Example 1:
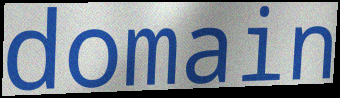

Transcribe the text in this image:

domain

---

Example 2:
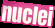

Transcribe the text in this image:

nuclei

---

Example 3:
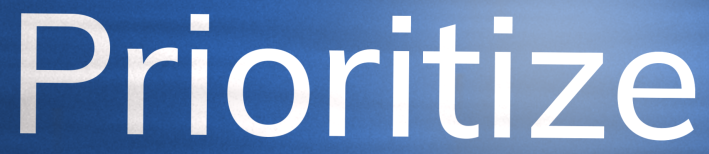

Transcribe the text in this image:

Prioritize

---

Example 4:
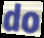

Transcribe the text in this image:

do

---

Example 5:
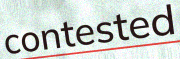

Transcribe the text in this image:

contested